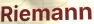
Riemann